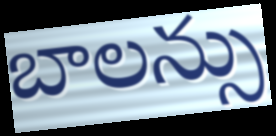
బాలన్సు